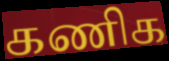
கணிக